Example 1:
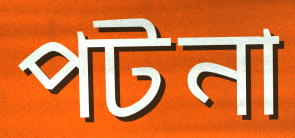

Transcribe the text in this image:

পটনা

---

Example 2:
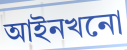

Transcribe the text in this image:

আইনখনো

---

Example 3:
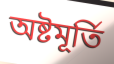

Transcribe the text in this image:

অষ্টমূৰ্তি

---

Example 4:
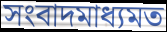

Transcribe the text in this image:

সংবাদমাধ্যমত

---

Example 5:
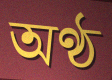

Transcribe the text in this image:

অণ্ঠ